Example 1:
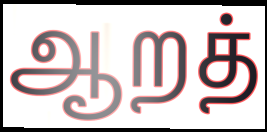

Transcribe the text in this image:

ஆறத்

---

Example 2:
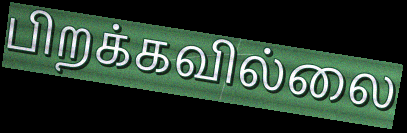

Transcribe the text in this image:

பிறக்கவில்லை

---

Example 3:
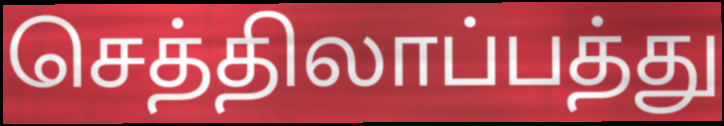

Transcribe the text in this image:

செத்திலாப்பத்து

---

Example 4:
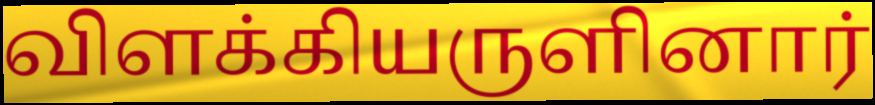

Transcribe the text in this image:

விளக்கியருளினார்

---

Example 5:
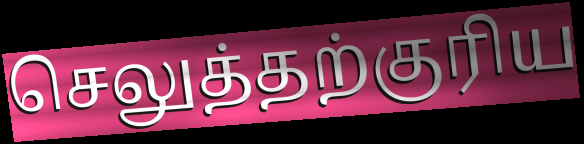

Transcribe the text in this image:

செலுத்தற்குரிய